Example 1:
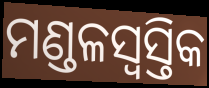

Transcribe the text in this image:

ମଣ୍ଡଳସ୍ୱସ୍ତିକ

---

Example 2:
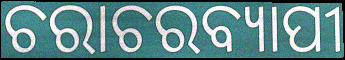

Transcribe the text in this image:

ଚରାଚରବ୍ୟାପୀ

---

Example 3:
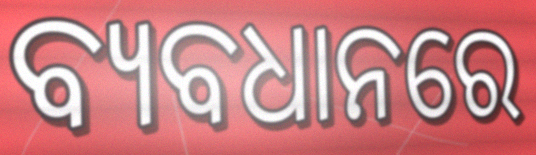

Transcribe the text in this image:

ବ୍ୟବଧାନରେ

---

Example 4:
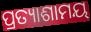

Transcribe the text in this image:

ପ୍ରତ୍ୟାଶାମୟ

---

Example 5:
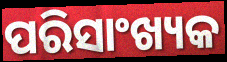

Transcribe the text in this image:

ପରିସାଂଖ୍ୟକ